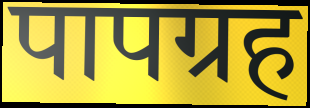
पापग्रह